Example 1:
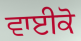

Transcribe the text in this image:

ਵਾਈਕੋ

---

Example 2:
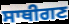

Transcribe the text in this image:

ਸਾਥੀਗਣ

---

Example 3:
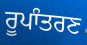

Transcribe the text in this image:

ਰੂਪਾੰਤਰਣ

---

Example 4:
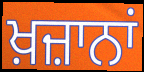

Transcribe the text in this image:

ਖ਼ਜ਼ਾਨਾਂ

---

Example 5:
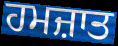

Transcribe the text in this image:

ਹਮਜ਼ਾਤ